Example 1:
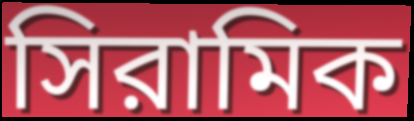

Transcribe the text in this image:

সিরামিক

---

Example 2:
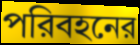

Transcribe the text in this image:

পরিবহনের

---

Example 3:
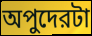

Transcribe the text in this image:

অপুদেরটা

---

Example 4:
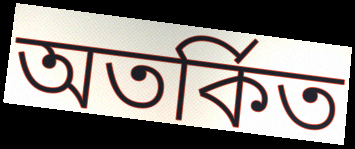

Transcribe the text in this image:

অতর্কিত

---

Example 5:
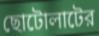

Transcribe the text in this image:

ছোটোলাটের